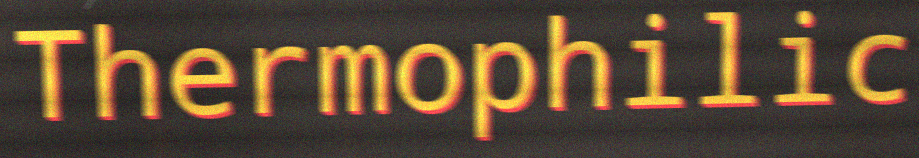
Thermophilic